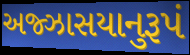
અજ્ઝાસયાનુરૂપં